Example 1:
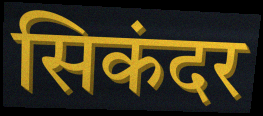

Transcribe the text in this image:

सिकंदर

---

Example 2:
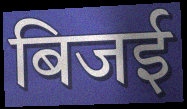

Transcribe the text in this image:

बिजई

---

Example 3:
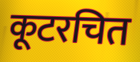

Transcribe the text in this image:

कूटरचित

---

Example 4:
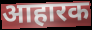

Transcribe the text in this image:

आहारक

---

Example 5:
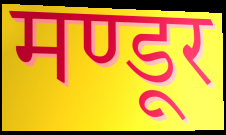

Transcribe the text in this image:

मण्डूर